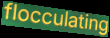
flocculating